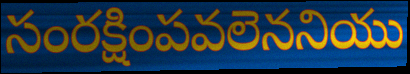
సంరక్షింపవలెననియు